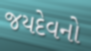
જયદેવનો